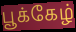
பூக்கேழ்